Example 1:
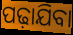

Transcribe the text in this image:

ପଢ଼ାଯିବା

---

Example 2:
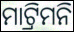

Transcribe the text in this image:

ମାଟ୍ରିମନି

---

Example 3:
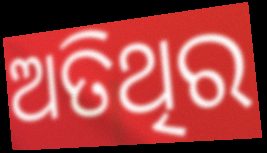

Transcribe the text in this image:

ଅତିଥିର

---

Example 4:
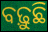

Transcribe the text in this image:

ବଢ଼ୁଛି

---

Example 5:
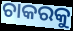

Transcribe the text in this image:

ଚାକରକୁ